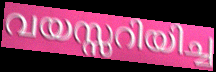
വയസ്സറിയിച്ച